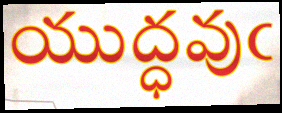
యుద్ధవుఁ